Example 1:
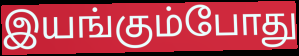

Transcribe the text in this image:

இயங்கும்போது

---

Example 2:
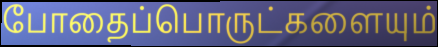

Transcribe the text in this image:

போதைப்பொருட்களையும்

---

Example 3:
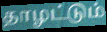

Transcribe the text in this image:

தாழட்டும்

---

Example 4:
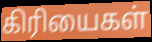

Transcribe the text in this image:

கிரியைகள்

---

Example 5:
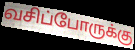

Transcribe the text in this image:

வசிப்போருக்கு